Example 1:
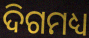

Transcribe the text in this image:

ଦିଗମଧ୍ୟ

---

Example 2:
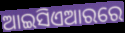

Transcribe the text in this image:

ଆଇସିଏଆରରେ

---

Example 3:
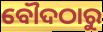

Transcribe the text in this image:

ବୌଦଠାରୁ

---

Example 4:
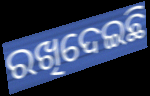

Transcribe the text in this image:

ରଖିଦେଇଛି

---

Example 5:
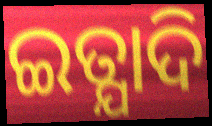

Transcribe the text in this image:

ଇତ୍ଯାଦି